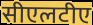
सीएलटीए